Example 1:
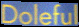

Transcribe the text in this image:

Doleful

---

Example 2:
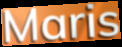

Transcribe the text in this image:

Maris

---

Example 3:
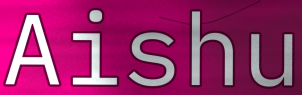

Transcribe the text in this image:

Aishu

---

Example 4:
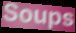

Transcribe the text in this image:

Soups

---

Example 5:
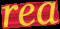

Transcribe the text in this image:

rea